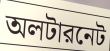
অলটারনেট